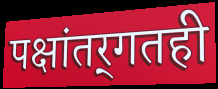
पक्षांतर्गतही